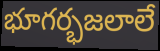
భూగర్భజలాలే